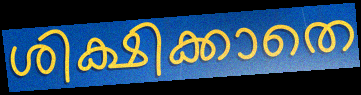
ശിക്ഷിക്കാതെ